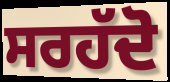
ਸਰਹੱਦੋ